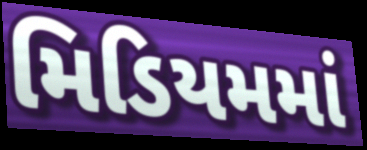
મિડિયમમાં